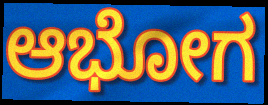
ಆಭೋಗ